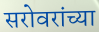
सरोवरांच्या